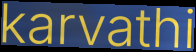
karvathi